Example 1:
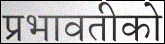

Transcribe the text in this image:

प्रभावतीको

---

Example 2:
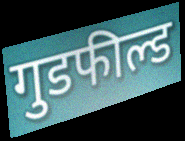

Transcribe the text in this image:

गुडफील्ड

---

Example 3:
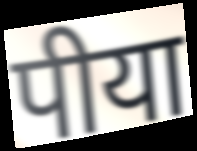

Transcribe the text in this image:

पीया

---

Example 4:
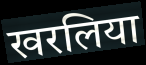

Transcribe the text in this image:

खरलिया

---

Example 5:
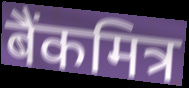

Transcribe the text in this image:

बैंकमित्र